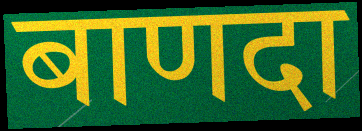
बाणदा